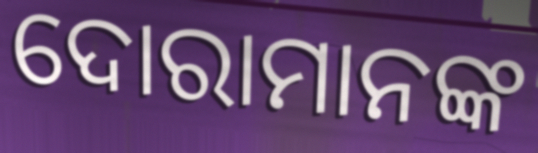
ଦୋରାମାନଙ୍କ